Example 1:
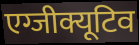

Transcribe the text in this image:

एग्जीक्यूटिव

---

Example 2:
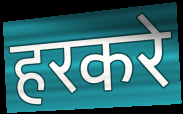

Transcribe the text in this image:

हरकरे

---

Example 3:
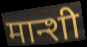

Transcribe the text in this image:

मान्शी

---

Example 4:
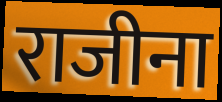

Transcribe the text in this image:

राजीना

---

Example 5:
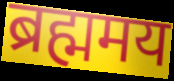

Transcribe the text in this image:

ब्रह्ममय